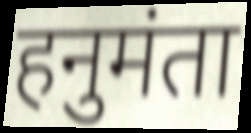
हनुमंता